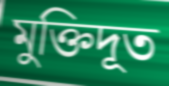
মুক্তিদূত